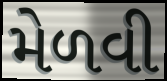
મેળવી